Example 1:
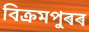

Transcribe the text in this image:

বিক্ৰমপুৰৰ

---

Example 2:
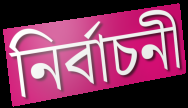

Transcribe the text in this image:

নিৰ্বাচনী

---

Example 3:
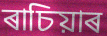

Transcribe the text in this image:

ৰাচিয়াৰ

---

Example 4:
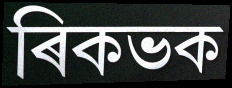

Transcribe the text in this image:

ৰিকভক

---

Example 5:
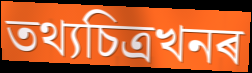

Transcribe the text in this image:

তথ্যচিত্ৰখনৰ